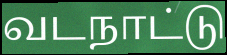
வடநாட்டு